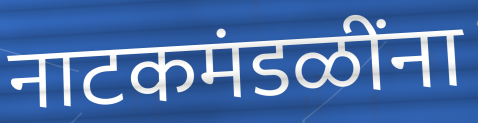
नाटकमंडळींना